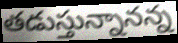
తడుస్తున్నానన్న